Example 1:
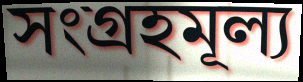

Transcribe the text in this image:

সংগ্রহমূল্য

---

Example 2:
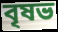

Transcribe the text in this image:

বৃষভ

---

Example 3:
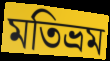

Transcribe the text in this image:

মতিভ্রম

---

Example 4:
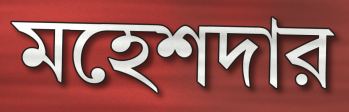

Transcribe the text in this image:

মহেশদার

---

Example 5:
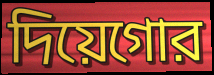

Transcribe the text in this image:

দিয়েগোর